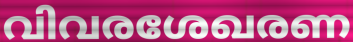
വിവരശേഖരണ